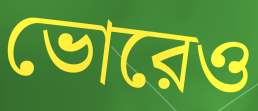
ভোরেও